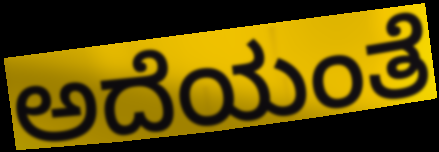
ಅದೆಯಂತೆ